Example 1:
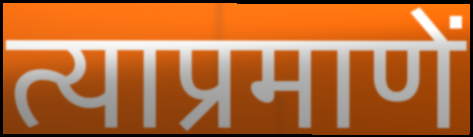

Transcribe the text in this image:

त्याप्रमाणें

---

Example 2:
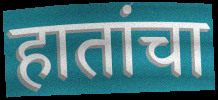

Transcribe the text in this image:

हातांचा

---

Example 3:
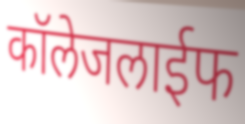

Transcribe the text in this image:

कॉलेजलाईफ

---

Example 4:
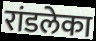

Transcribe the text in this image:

रांडलेका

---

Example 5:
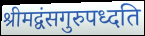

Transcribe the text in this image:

श्रीमद्वंसगुरुपध्दति